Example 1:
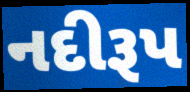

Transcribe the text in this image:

નદીરૂપ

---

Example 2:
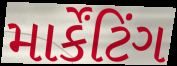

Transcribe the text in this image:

માર્કેંટિંગ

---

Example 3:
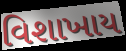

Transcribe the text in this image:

વિશાખાય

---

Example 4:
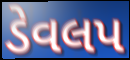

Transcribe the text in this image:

ડેવલપ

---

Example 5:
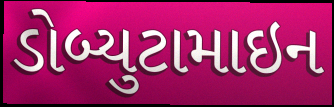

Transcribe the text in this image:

ડોબ્યુટામાઇન